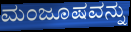
ಮಂಜೂಷವನ್ನು